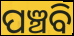
ପଞ୍ଚବି